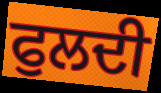
ਫੁਲਦੀ